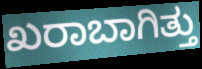
ಖರಾಬಾಗಿತ್ತು